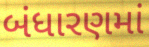
બંધારણમાં